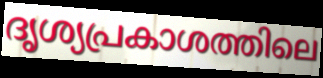
ദൃശ്യപ്രകാശത്തിലെ